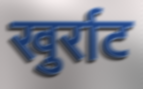
खुर्राट